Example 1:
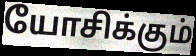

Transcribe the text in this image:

யோசிக்கும்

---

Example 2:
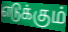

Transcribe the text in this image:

எடுக்கும்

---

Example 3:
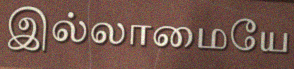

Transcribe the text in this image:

இல்லாமையே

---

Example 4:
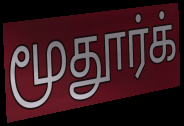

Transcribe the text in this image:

மூதூர்க்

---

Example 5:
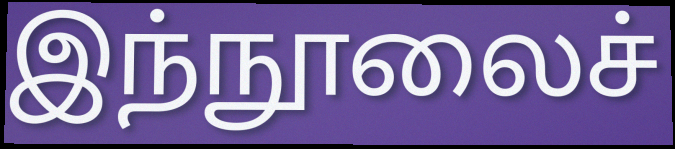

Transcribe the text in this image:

இந்நூலைச்